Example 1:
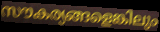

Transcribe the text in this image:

സൗകര്യങ്ങളെങ്കിലും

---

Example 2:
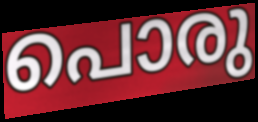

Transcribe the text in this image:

പൊരു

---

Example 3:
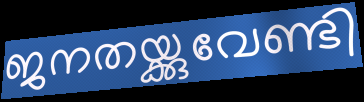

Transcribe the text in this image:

ജനതയ്ക്കുവേണ്ടി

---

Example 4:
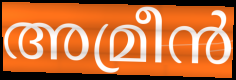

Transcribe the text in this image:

അമ്രീൻ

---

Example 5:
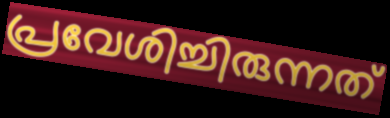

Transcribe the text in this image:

പ്രവേശിച്ചിരുന്നത്